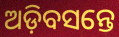
ଅଡ଼ିବସନ୍ତେ